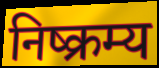
निष्क्रम्य